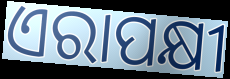
ଏରାପକ୍ଷୀ